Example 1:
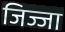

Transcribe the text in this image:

जिज्जा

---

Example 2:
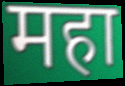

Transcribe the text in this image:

महा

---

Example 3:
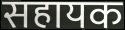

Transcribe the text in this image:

सहायक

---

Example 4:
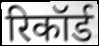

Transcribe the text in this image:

रिकॉर्ड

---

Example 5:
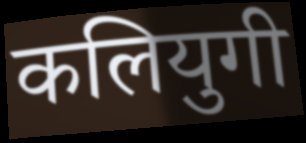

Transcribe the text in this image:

कलियुगी